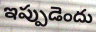
ఇప్పుడెందు